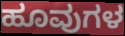
ಹೂವುಗಳ